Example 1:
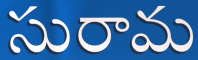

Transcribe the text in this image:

సురామ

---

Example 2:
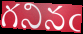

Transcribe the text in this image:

గనినఁ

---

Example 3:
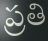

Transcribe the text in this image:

ప్రతి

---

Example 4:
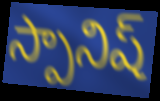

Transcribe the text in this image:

స్పానిష్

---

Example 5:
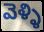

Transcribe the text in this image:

వెళ్ళి